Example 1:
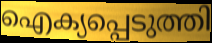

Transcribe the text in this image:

ഐക്യപ്പെടുത്തി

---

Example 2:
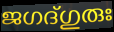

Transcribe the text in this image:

ജഗദ്ഗുരുഃ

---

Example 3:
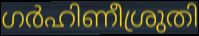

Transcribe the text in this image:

ഗർഹിണീശ്രുതി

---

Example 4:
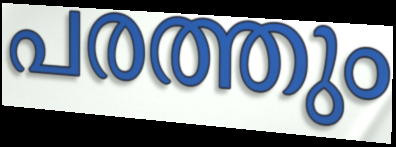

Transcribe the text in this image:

പരത്തും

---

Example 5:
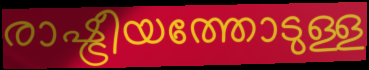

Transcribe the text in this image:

രാഷ്ട്രീയത്തോടുള്ള